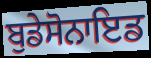
ਬੁਡੇਸੋਨਾਇਡ